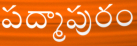
పద్మాపురం